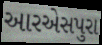
આરએસપુરા